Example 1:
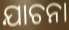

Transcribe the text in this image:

ଯାଚନା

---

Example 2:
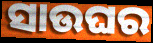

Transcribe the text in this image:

ସାଉଘର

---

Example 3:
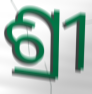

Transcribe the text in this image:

ଶ୍ରୀ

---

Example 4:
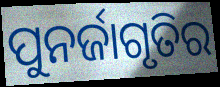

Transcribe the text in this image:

ପୁନର୍ଜାଗୃତିର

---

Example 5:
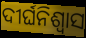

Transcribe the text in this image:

ଦୀର୍ଘନିଶ୍ୱାସ